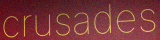
crusades